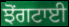
ਝੋਂਗਟਾਈ